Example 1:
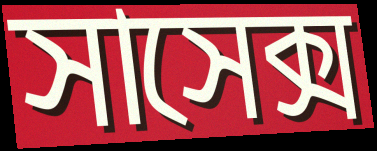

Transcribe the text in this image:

সাসেক্স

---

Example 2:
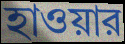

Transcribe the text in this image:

হাওয়ার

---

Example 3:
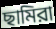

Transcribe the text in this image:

ছামিরা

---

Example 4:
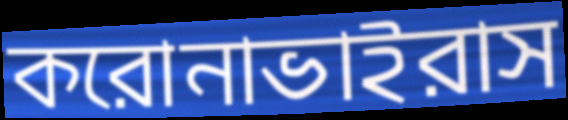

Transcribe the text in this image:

করোনাভাইরাস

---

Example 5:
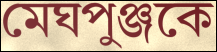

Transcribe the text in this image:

মেঘপুঞ্জকে